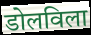
डोलविला